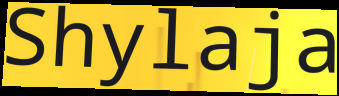
Shylaja